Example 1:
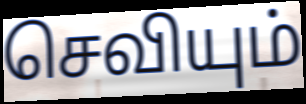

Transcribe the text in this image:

செவியும்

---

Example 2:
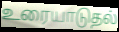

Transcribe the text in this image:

உரையாடுதல்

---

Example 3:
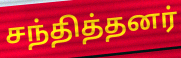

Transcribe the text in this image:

சந்தித்தனர்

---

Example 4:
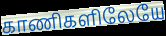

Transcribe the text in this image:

காணிகளிலேயே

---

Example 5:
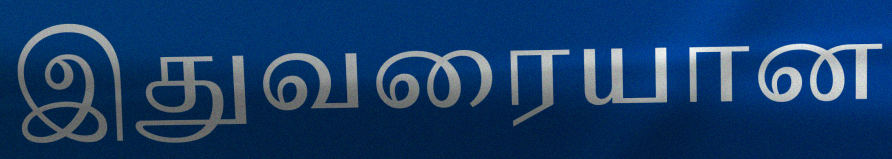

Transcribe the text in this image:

இதுவரையான